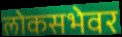
लोकसभेवर